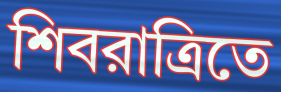
শিবরাত্রিতে